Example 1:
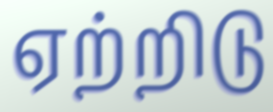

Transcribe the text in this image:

ஏற்றிடு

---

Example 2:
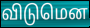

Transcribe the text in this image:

விடுமென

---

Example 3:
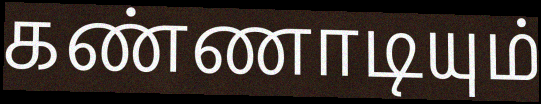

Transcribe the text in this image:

கண்ணாடியும்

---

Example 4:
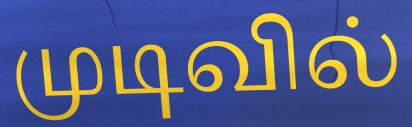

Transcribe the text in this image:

முடிவில்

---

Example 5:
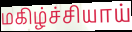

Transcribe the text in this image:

மகிழ்ச்சியாய்